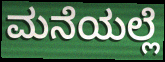
ಮನೆಯಲ್ಲೆ